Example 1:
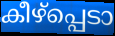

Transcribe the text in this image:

കീഴ്പ്പെടാ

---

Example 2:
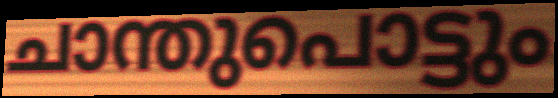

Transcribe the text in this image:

ചാന്തുപൊട്ടും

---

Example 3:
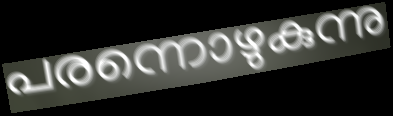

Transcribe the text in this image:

പരന്നൊഴുകുന്നു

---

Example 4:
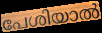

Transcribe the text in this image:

പേശിയാൽ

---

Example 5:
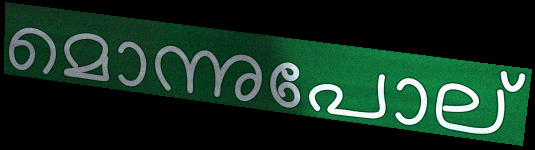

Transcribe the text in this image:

മൊന്നുപോല്